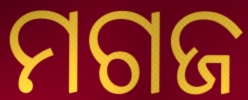
ମଗଜ